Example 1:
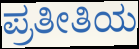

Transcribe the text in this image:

ಪ್ರತೀತಿಯ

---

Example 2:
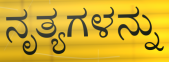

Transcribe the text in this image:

ನೃತ್ಯಗಳನ್ನು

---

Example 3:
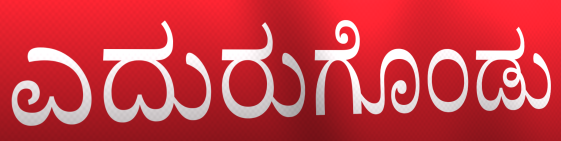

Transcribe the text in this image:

ಎದುರುಗೊಂಡು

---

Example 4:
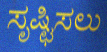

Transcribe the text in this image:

ಸೃಷ್ಟಿಸಲು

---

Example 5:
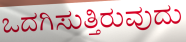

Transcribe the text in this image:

ಒದಗಿಸುತ್ತಿರುವುದು